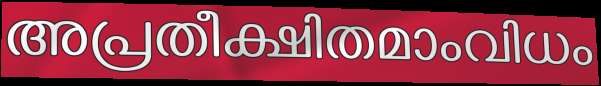
അപ്രതീക്ഷിതമാംവിധം